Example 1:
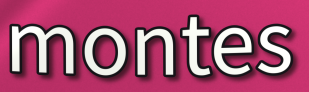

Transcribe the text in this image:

montes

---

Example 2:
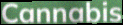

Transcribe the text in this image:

Cannabis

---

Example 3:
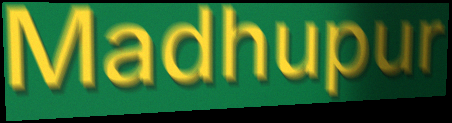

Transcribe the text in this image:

Madhupur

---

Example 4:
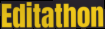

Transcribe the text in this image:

Editathon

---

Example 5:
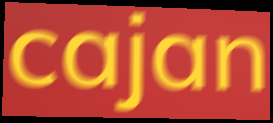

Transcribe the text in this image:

cajan